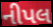
નીપલ